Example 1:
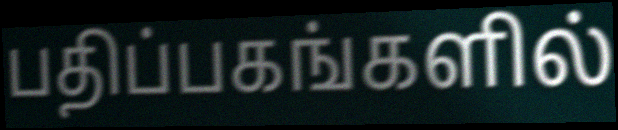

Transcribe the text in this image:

பதிப்பகங்களில்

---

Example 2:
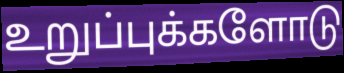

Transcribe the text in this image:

உறுப்புக்களோடு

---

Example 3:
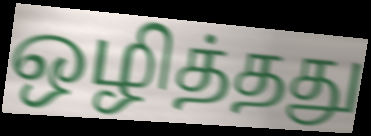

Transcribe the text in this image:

ஒழித்தது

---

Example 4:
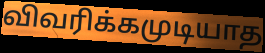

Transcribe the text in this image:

விவரிக்கமுடியாத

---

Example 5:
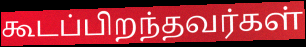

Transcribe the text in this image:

கூடப்பிறந்தவர்கள்